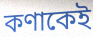
কণাকেই